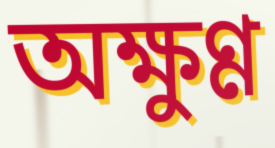
অক্ষুণ্ণ